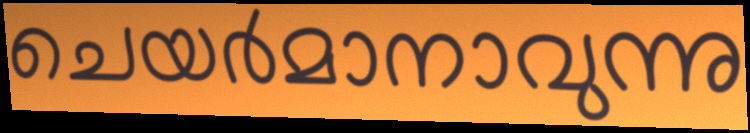
ചെയർമാനാവുന്നു